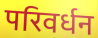
परिवर्धन